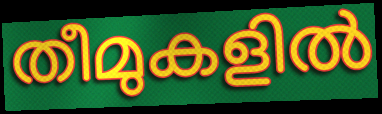
തീമുകളിൽ